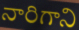
నారిగాని